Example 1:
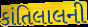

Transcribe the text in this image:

કાંતિલાલની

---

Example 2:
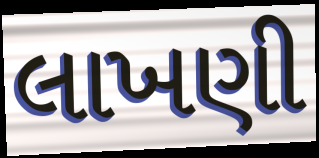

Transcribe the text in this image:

લાખણી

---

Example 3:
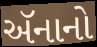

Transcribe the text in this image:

ઍનાનો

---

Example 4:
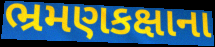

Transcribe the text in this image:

ભ્રમણકક્ષાના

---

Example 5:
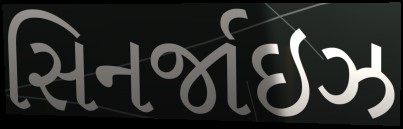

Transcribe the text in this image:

સિનર્જાઇઝ